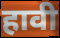
हावी